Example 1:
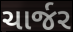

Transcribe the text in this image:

ચાર્જર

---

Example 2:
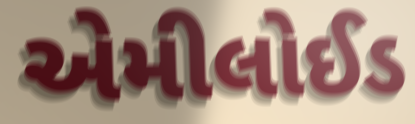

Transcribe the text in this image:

એમીલોઈડ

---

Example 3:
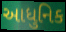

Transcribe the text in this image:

આધુનિક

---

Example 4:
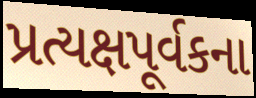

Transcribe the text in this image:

પ્રત્યક્ષપૂર્વકના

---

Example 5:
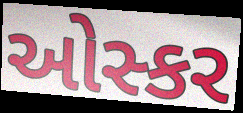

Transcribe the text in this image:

ઓસ્કર